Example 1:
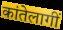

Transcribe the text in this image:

कांतेलागीं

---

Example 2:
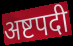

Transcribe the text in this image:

अष्टपदी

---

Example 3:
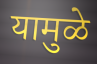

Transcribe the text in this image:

यामुळे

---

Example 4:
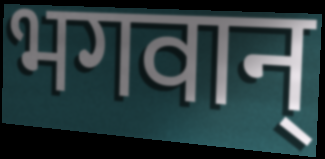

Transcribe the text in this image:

भगवान्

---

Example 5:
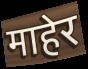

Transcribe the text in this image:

माहेर